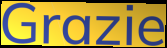
Grazie